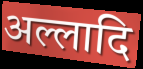
अल्लादि